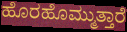
ಹೊರಹೊಮ್ಮುತ್ತಾರೆ